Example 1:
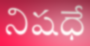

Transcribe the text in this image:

నిషధే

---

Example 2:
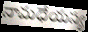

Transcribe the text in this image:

నామధేయస్య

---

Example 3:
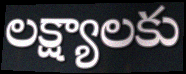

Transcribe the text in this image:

లక్ష్యాలకు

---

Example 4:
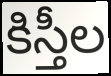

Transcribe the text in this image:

కిస్తీల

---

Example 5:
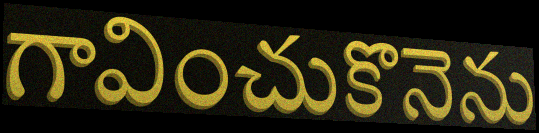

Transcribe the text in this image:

గావించుకొనెను